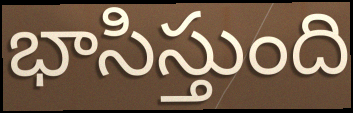
భాసిస్తుంది